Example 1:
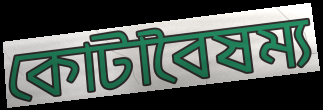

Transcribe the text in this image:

কোটাবৈষম্য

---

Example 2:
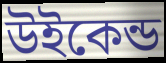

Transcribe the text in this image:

উইকেন্ড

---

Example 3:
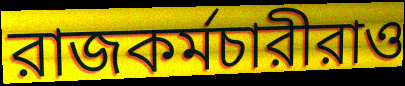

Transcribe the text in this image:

রাজকর্মচারীরাও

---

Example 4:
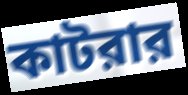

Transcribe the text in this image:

কাটরার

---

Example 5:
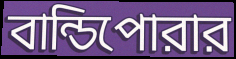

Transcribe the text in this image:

বান্ডিপোরার